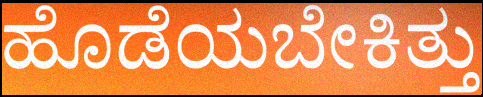
ಹೊಡೆಯಬೇಕಿತ್ತು